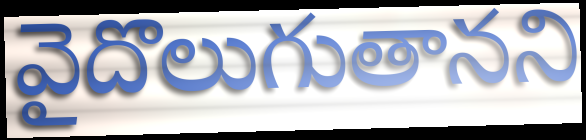
వైదొలుగుతానని